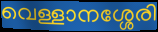
വെള്ളാനശ്ശേരി